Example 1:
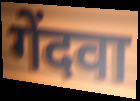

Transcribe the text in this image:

गेंदवा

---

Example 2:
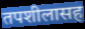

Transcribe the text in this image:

तपशीलासह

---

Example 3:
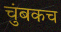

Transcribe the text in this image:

चुंबकच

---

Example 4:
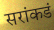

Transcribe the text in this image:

सरांकडं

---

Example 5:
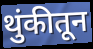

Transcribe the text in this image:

थुंकीतून